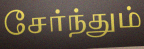
சேர்ந்தும்